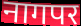
नागपर